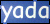
yada